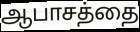
ஆபாசத்தை